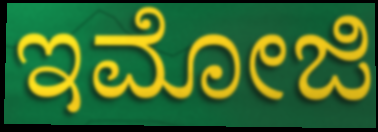
ಇಮೋಜಿ